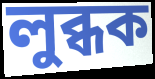
লুব্ধক